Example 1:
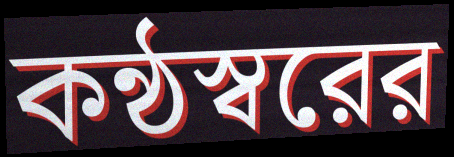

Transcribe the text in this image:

কন্ঠস্বরের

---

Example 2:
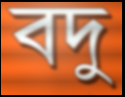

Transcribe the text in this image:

বদু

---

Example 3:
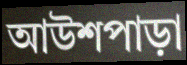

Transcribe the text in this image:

আউশপাড়া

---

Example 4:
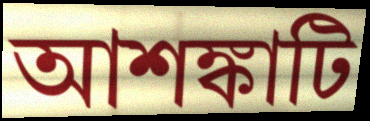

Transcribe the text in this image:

আশঙ্কাটি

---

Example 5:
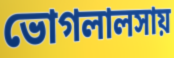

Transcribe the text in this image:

ভোগলালসায়